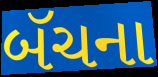
બૅચના